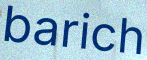
barich